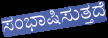
ಸಂಭಾಷಿಸುತ್ತದೆ